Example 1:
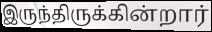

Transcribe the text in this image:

இருந்திருக்கின்றார்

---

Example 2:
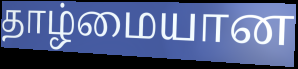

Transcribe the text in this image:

தாழ்மையான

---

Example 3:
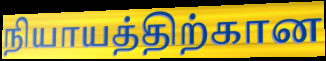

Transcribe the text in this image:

நியாயத்திற்கான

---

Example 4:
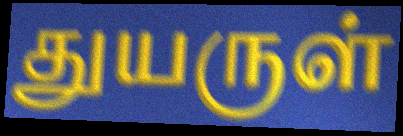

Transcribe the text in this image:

துயருள்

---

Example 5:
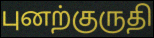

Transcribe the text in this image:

புனற்குருதி